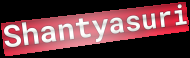
Shantyasuri